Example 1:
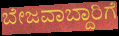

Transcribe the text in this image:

ಬೇಜವಾಬ್ದಾರಿಗೆ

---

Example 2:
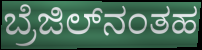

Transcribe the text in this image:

ಬ್ರೆಜಿಲ್‌ನಂತಹ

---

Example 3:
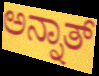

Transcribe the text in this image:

ಅನ್ನಾತ್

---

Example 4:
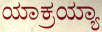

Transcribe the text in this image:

ಯಾಕ್ರಯ್ಯಾ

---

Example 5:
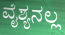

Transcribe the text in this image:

ವೈಶ್ಯನಲ್ಲ